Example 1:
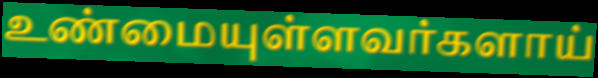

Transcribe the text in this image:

உண்மையுள்ளவர்களாய்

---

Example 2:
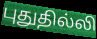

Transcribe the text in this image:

புதுதில்லி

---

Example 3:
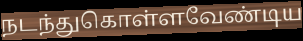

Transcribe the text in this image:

நடந்துகொள்ளவேண்டிய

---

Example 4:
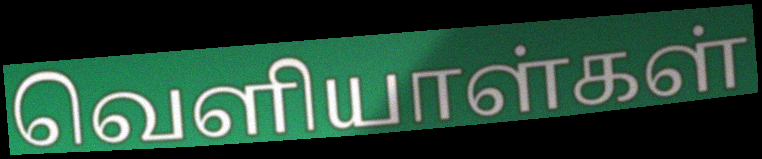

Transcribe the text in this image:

வெளியாள்கள்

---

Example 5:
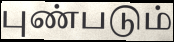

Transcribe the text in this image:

புண்படும்